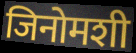
जिनोमशी